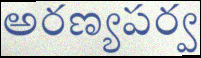
అరణ్యపర్వ